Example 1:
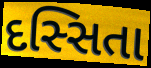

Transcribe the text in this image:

દસ્સિતા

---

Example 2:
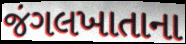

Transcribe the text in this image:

જંગલખાતાના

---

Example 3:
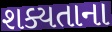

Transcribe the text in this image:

શક્યતાના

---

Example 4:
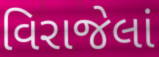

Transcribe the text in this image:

વિરાજેલાં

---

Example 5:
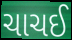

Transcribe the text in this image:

ચાચઈ